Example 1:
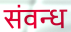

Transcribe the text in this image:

संवन्ध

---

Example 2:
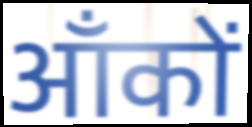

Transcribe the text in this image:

आँकों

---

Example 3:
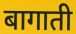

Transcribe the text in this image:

बागाती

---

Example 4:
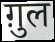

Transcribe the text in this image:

ग़ुल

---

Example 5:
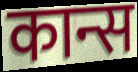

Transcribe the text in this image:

कान्‍स